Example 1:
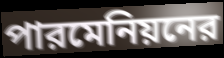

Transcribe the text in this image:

পারমেনিয়নের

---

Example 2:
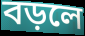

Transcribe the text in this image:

বড়লে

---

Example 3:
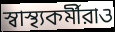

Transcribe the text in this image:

স্বাস্থ্যকর্মীরাও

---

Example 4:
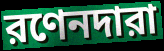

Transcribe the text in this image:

রণেনদারা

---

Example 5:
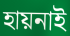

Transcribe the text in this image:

হায়নাই